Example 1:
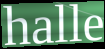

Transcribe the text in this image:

halle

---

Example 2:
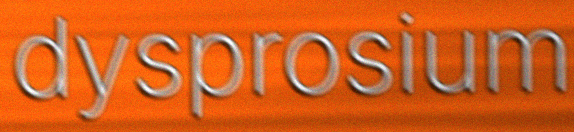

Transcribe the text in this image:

dysprosium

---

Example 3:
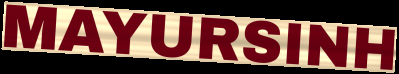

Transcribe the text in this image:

MAYURSINH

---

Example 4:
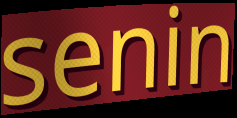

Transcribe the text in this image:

senin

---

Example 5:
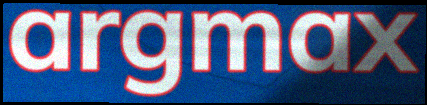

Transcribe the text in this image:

argmax